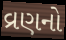
વ્રણનો